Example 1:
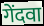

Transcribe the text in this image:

गेंदवा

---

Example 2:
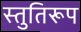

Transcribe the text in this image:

स्तुतिरूप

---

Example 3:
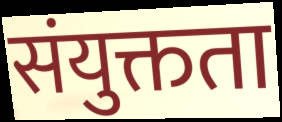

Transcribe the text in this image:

संयुक्तता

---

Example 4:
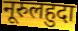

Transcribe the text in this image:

नूरुलहुदा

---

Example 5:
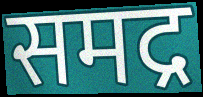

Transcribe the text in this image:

समद्र